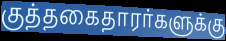
குத்தகைதாரர்களுக்கு